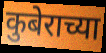
कुबेराच्या